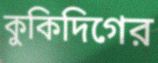
কুকিদিগের